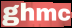
ghmc